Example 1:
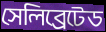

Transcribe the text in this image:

সেলিব্রেটেড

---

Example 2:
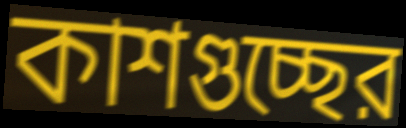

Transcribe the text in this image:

কাশগুচ্ছের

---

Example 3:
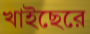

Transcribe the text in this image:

খাইছেরে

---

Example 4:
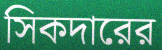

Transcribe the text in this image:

সিকদারের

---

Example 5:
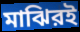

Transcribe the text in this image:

মাঝিরই